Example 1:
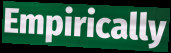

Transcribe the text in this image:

Empirically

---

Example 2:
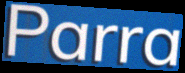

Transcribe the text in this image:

Parra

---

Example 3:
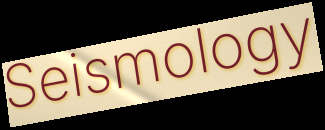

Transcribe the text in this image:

Seismology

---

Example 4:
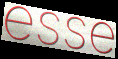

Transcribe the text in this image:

esse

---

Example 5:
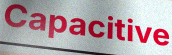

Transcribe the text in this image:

Capacitive